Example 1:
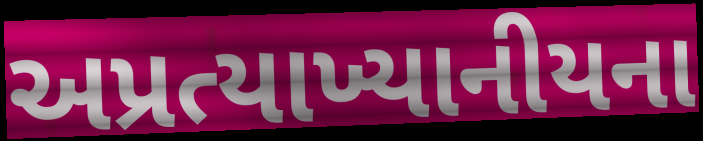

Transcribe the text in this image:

અપ્રત્યાખ્યાનીયના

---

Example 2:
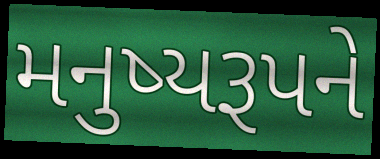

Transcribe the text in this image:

મનુષ્યરૂપને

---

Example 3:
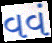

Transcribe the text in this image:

વવં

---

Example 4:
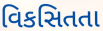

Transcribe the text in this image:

વિકસિતતા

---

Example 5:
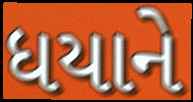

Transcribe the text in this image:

ધયાને